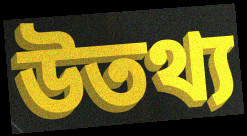
উতথ্য